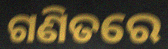
ଗଣିତରେ